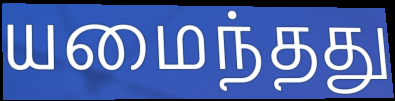
யமைந்தது